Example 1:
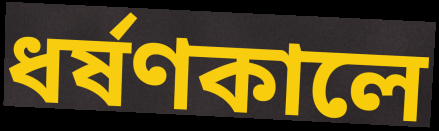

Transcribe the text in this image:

ধর্ষণকালে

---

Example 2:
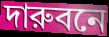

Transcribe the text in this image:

দারুবনে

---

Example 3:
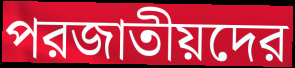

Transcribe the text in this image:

পরজাতীয়দের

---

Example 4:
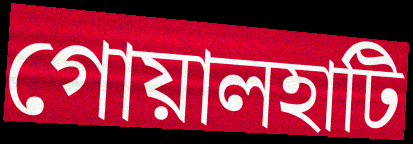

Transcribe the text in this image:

গোয়ালহাটি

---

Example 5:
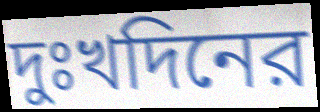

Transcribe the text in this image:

দুঃখদিনের